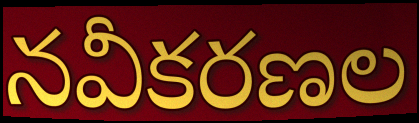
నవీకరణల